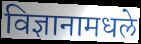
विज्ञानामधले